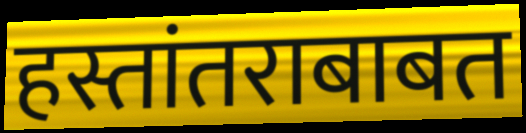
हस्तांतराबाबत